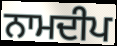
ਨਾਮਦੀਪ